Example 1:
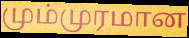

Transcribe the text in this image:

மும்முரமான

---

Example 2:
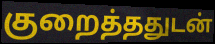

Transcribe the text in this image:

குறைத்ததுடன்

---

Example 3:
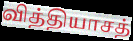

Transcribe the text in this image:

வித்தியாசத்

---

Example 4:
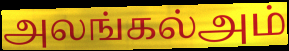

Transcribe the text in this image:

அலங்கல்அம்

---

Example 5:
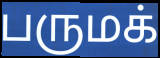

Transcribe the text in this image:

பருமக்